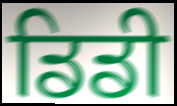
ਡਿਡੀ